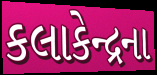
કલાકેન્દ્રના